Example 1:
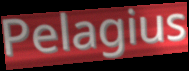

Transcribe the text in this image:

Pelagius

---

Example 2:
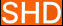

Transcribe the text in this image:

SHD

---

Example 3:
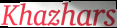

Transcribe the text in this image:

Khazhars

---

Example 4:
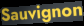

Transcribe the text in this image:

Sauvignon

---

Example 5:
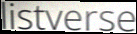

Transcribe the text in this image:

listverse